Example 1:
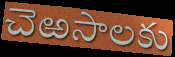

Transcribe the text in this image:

చెఱసాలకు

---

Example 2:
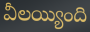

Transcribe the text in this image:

వీలయ్యింది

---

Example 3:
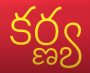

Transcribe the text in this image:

కర్ణ్య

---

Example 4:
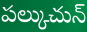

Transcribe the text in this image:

పల్కుచున్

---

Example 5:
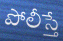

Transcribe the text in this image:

పోలీస్తే